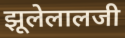
झूलेलालजी